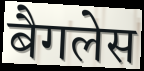
बैगलेस